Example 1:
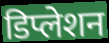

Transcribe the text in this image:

डिप्लेशन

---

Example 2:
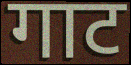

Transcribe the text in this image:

गाट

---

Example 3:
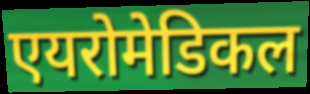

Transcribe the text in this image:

एयरोमेडिकल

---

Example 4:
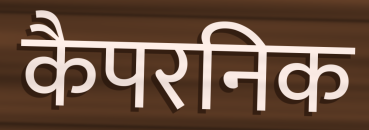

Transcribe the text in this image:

कैपरनिक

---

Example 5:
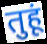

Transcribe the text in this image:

तुहूं